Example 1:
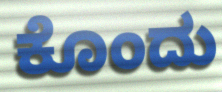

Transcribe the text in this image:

ಕೊಂದು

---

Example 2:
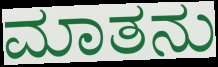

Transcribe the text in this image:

ಮಾತನು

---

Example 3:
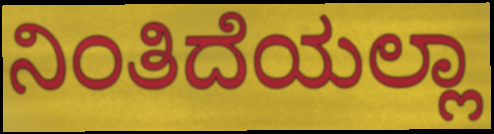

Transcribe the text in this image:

ನಿಂತಿದೆಯಲ್ಲಾ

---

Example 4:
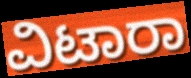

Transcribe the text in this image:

ವಿಟಾರಾ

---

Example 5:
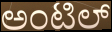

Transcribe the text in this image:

ಅಂಟಿಲ್